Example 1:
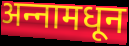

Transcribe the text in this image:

अन्नामधून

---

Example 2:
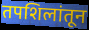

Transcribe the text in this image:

तपशिलांतून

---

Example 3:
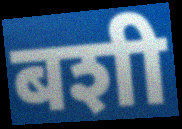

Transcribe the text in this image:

बशी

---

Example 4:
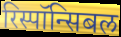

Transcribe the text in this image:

रिस्पॉन्सिबल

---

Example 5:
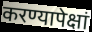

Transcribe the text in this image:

करण्यापेक्षां